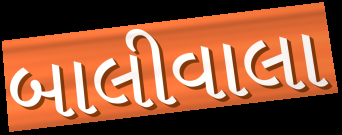
બાલીવાલા